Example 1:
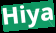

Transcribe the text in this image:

Hiya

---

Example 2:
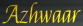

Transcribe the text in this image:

Azhwaar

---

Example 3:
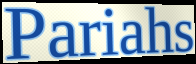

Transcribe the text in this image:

Pariahs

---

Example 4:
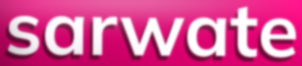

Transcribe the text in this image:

sarwate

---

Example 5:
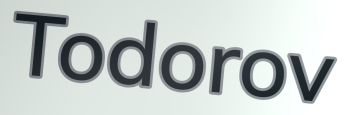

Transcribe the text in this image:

Todorov